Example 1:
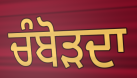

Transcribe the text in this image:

ਚੰਬੋੜਦਾ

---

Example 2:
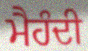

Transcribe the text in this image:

ਮੈਹੰਦੀ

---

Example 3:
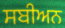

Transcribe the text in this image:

ਸਬੀਅਨ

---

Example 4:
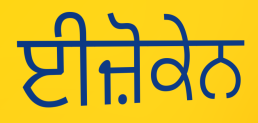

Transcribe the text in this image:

ਈਜ਼ੋਕੇਨ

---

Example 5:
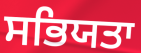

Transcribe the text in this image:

ਸਭਿਯਤਾ